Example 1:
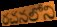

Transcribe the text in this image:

రచనలోని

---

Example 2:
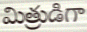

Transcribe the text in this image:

మిత్రుడిగా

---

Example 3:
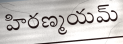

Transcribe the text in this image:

హిరణ్మయమ్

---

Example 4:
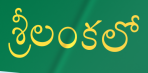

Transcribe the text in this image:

శ్రీలంకలో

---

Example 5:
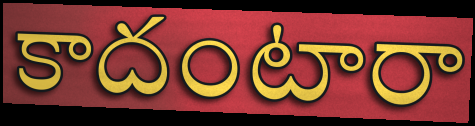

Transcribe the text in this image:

కాదంటారా